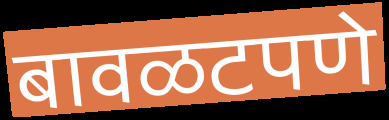
बावळटपणे